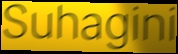
Suhagini